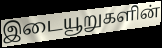
இடையூறுகளின்